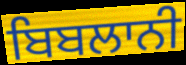
ਬਿਬਲਾਨੀ